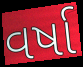
વર્ષા